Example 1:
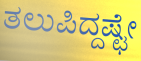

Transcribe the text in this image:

ತಲುಪಿದ್ದಷ್ಟೇ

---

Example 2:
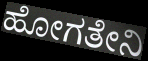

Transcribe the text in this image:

ಹೋಗತೇನಿ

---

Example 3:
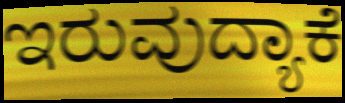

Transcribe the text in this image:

ಇರುವುದ್ಯಾಕೆ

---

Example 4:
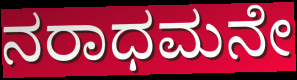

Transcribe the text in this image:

ನರಾಧಮನೇ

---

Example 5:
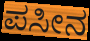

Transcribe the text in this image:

ಪಸೀನ